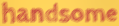
handsome